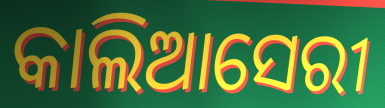
କାଲିଆସେରୀ